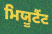
ਮਿਯੂਟੈਂਟ